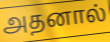
அதனால்